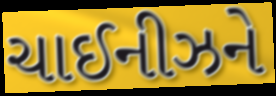
ચાઈનીઝને